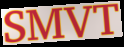
SMVT